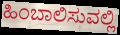
ಹಿಂಬಾಲಿಸುವಲ್ಲಿ